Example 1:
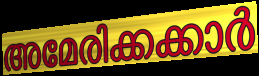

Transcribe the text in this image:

അമേരിക്കക്കാർ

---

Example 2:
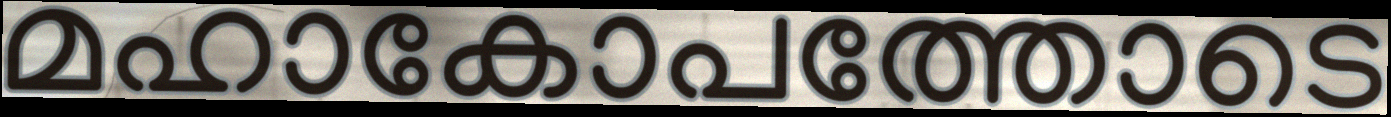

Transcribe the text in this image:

മഹാകോപത്തോടെ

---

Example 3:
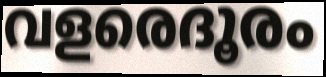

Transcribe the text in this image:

വളരെദൂരം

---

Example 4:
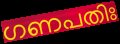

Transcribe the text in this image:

ഗണപതിഃ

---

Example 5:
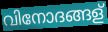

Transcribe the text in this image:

വിനോദങ്ങള്